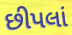
છીપલાં